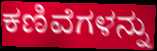
ಕಣಿವೆಗಳನ್ನು